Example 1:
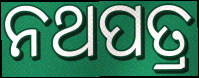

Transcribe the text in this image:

ନଥପତ୍ର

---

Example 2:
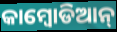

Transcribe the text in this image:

କାମ୍ବୋଡିଆନ୍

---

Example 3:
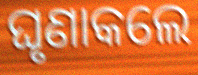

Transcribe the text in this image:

ଘୃଣାକଲେ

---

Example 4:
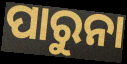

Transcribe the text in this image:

ପାରୁନା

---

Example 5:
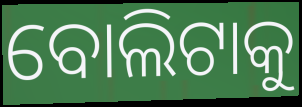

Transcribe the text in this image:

ବୋଲିଟାକୁ